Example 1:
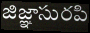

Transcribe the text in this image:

జిజ్ఞాసురపి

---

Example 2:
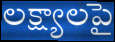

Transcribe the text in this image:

లక్ష్యాలపై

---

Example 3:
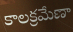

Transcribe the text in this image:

కాలక్రమేణా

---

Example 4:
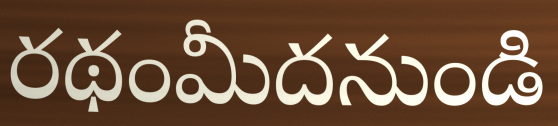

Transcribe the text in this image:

రథంమీదనుండి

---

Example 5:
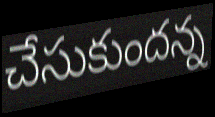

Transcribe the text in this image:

చేసుకుందన్న